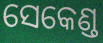
ସେକେଣ୍ଡ